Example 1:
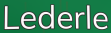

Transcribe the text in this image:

Lederle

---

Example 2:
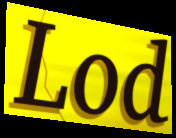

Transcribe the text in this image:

Lod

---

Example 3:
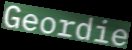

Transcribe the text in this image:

Geordie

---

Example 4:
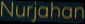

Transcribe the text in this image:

Nurjahan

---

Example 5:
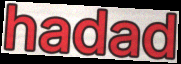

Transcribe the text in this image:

hadad